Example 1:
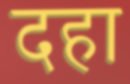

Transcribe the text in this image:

दहा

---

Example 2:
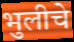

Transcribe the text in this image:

भुलीचे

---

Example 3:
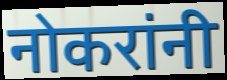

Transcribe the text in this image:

नोकरांनी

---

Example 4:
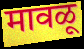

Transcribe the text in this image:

मावळू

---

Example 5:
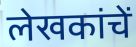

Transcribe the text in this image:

लेखकांचें